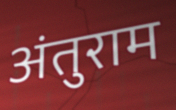
अंतुराम